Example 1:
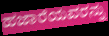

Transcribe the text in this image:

ಹಜಾರೆಯವರನ್ನು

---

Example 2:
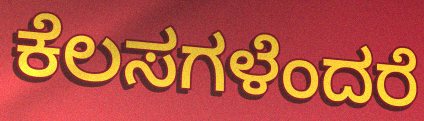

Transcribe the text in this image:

ಕೆಲಸಗಳೆಂದರೆ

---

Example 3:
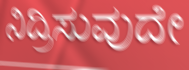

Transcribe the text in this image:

ನಿದ್ರಿಸುವುದೇ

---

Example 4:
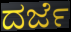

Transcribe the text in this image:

ದರ್ಜೆ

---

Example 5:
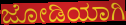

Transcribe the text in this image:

ಜೋಡಿಯಾಗಿ